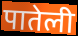
पातेली